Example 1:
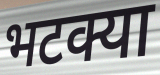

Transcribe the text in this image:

भटक्या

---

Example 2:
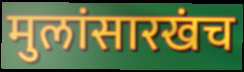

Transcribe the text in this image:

मुलांसारखंच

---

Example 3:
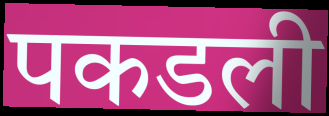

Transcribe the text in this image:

पकडली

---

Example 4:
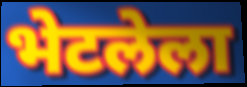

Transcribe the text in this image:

भेटलेला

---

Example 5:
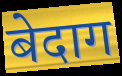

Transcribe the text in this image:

बेदाग